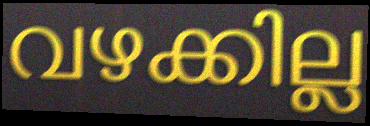
വഴക്കില്ല